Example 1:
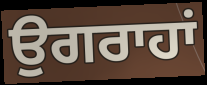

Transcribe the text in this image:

ਉਗਰਾਹਾਂ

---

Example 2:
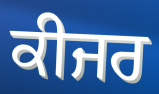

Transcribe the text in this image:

ਕੀਜਰ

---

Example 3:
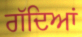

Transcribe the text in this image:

ਗੱਦਿਆਂ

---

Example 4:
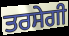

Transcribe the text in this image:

ਤਰਸੇਗੀ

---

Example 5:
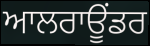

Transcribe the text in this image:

ਆਲਰਾਊਂਡਰ